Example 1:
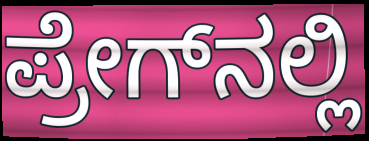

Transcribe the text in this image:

ಪ್ರೇಗ್‌ನಲ್ಲಿ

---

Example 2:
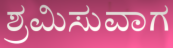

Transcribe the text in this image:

ಶ್ರಮಿಸುವಾಗ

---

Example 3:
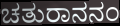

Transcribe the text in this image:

ಚತುರಾನನಂ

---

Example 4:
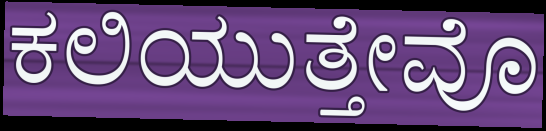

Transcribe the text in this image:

ಕಲಿಯುತ್ತೇವೊ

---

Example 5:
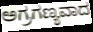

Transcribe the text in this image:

ಅಗ್ರಗಣ್ಯವಾದ